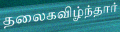
தலைகவிழ்ந்தார்